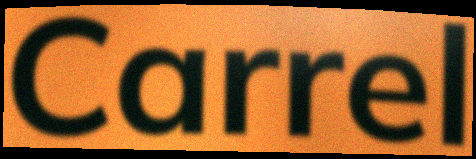
Carrel